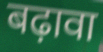
बढ़ावा